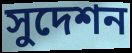
সুদেশন